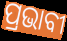
ପ୍ରଭାବୀ